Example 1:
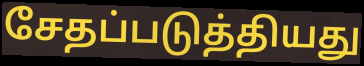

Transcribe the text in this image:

சேதப்படுத்தியது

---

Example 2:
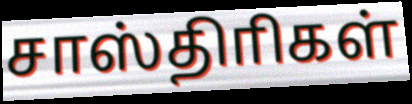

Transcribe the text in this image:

சாஸ்திரிகள்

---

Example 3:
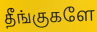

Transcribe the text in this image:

தீங்குகளே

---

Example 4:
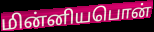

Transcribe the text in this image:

மின்னியபொன்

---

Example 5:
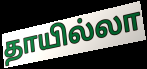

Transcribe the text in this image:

தாயில்லா